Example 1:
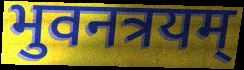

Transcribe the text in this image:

भुवनत्रयम्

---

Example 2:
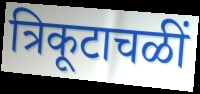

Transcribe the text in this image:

त्रिकूटाचळीं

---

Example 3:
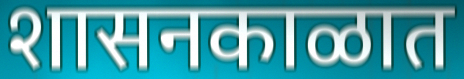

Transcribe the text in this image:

शासनकाळात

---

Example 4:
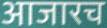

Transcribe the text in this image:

आजारच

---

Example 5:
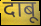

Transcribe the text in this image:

दाबू